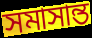
সমাসান্ত